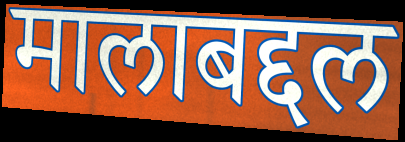
मालाबद्दल